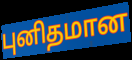
புனிதமான